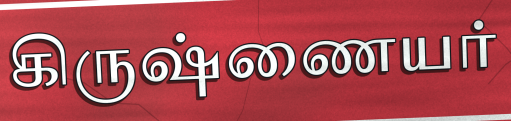
கிருஷ்ணையர்